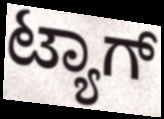
ಟ್ಯಾಗ್